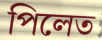
পিলেত